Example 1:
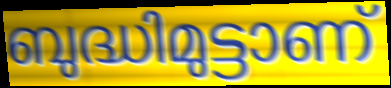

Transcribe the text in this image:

ബുദ്ധിമുട്ടാണ്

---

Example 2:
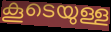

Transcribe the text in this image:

കൂടെയുള്ള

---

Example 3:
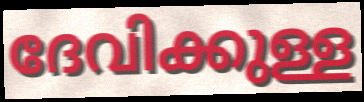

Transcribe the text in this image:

ദേവിക്കുള്ള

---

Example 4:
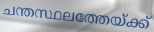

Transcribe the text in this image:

ചന്തസ്ഥലത്തേയ്ക്ക്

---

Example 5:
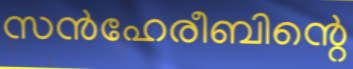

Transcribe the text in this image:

സൻഹേരീബിന്റെ